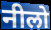
नीलो